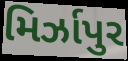
મિર્ઝાપુર